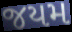
જયમ